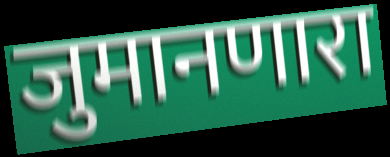
जुमानणारा